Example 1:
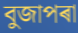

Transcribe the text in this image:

বুজাপৰা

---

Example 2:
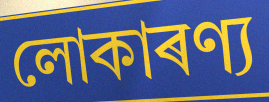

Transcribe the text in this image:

লোকাৰণ্য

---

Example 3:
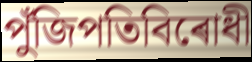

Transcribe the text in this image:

পুঁজিপতিবিৰোধী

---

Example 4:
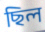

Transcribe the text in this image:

ছিল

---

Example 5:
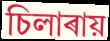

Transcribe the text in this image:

চিলাৰায়